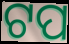
ଟପ